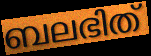
ബലഭിത്